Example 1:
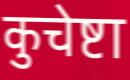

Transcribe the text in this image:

कुचेष्टा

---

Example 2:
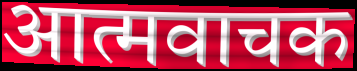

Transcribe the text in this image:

आत्मवाचक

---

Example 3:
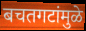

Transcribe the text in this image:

बचतगटांमुळे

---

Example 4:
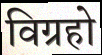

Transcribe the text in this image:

विग्रहो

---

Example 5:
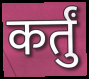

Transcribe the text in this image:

कर्तुं